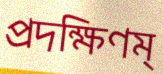
প্রদক্ষিণম্